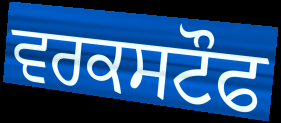
ਵਰਕਸਟੌਫ